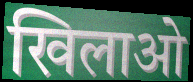
खिलाओ